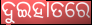
ଦୁଇହାତରେ